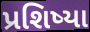
પ્રશિષ્યા